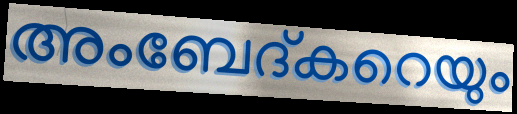
അംബേദ്കറെയും